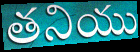
తనియు